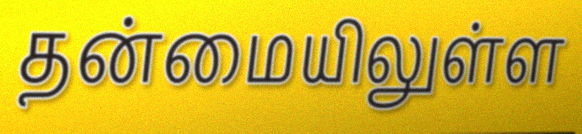
தன்மையிலுள்ள